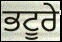
ਭਟੂਰੇ